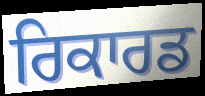
ਰਿਕਾਰਡ